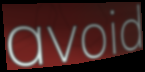
avoid